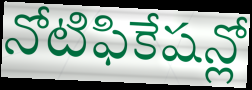
నోటిఫికేషన్లో